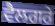
ਵੈਲਗਰੇ